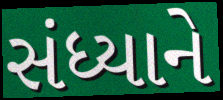
સંધ્યાને